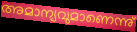
അമാന്യവുമാണെന്നു്